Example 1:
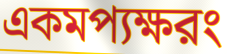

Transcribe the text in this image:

একমপ্যক্ষরং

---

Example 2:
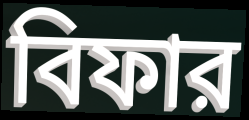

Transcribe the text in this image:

বিফার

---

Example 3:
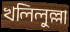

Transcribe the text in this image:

খলিলুল্লা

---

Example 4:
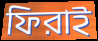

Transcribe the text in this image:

ফিরাই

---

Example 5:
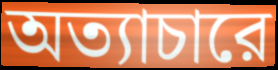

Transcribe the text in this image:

অত্যাচারে